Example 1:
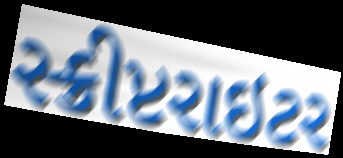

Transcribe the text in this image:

સ્ક્રીપ્ટરાઇટર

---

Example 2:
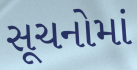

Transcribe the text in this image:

સૂચનોમાં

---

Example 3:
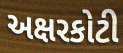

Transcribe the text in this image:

અક્ષરકોટી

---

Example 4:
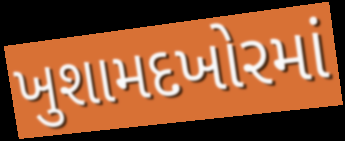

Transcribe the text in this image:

ખુશામદખોરમાં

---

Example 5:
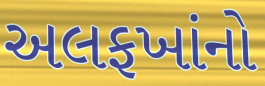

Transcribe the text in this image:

અલફખાંનો